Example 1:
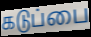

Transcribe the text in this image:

கடுப்பை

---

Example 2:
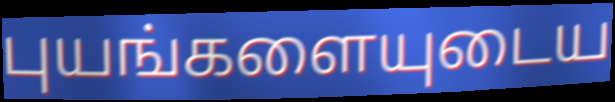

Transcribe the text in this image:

புயங்களையுடைய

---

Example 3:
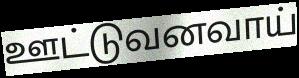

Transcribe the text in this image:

ஊட்டுவனவாய்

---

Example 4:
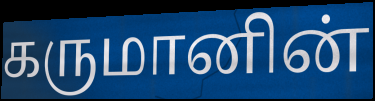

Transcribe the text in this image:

கருமானின்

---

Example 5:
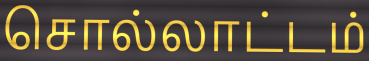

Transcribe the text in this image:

சொல்லாட்டம்